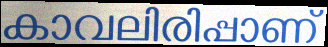
കാവലിരിപ്പാണ്